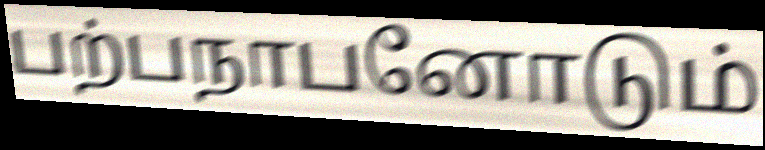
பற்பநாபனோடும்